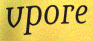
upore